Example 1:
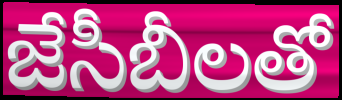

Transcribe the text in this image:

జేసీబీలతో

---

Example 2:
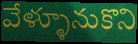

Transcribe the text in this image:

వేళ్ళూనుకొని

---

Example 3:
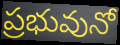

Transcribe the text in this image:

ప్రభువునో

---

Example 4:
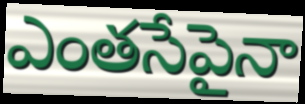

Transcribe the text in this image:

ఎంతసేపైనా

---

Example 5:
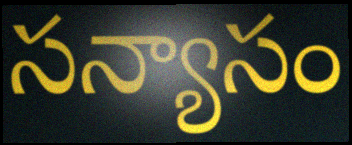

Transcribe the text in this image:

సన్యాసం